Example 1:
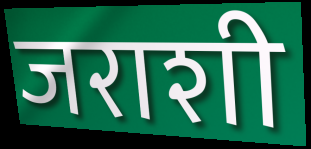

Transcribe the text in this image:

जराशी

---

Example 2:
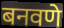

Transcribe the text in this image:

बनवणे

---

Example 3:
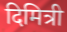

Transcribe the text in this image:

दिमित्री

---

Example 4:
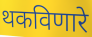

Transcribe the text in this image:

थकविणारे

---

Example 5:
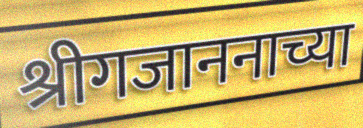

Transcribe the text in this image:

श्रीगजाननाच्या